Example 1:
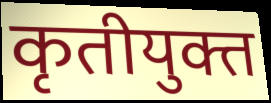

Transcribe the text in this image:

कृतीयुक्त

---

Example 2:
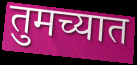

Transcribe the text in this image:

तुमच्यात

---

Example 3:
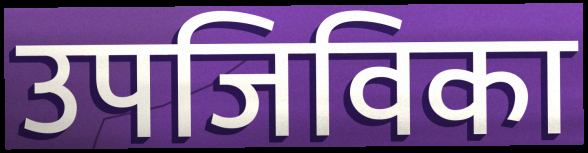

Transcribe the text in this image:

उपजिविका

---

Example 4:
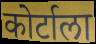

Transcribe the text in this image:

कोर्टाला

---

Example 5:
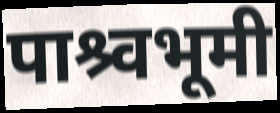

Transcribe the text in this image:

पाश्र्वभूमी